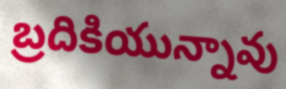
బ్రదికియున్నావు